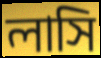
লাসি